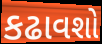
કઢાવશો